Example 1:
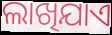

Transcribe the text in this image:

ଲାଖିଯାଏ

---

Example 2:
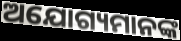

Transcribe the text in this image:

ଅଯୋଗ୍ୟମାନଙ୍କ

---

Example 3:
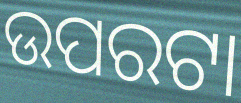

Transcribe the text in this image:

ଉପରଟା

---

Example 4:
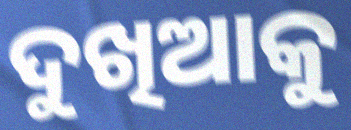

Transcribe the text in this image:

ଦୁଖିଆକୁ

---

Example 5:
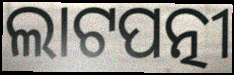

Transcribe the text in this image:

ଲାଟପତ୍ନୀ